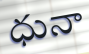
ధునా